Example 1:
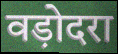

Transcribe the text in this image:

वड़ोदरा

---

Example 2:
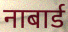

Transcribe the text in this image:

नाबार्ड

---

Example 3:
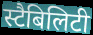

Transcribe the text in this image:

स्टैबिलिटी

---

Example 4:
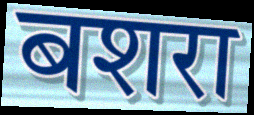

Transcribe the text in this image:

बशरा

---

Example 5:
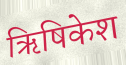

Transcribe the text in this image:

ऋिषिकेश